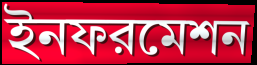
ইনফরমেশন